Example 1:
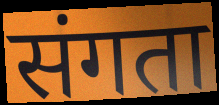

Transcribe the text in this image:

संगता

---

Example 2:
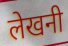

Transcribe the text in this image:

लेखनी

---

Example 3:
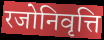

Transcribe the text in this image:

रजोनिवृत्ति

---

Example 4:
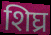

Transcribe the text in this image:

शिघ्र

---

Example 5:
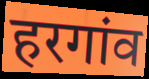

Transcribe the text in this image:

हरगांव